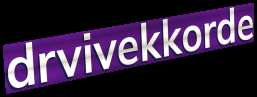
drvivekkorde